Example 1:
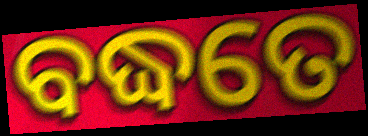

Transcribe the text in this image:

ବଦ୍ଧତେ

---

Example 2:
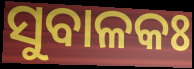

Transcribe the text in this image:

ସୁବାଳକଃ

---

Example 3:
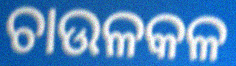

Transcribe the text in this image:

ଚାଉଳକଳ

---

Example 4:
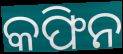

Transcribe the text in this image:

କଫିନ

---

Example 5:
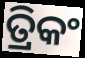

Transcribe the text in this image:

ତ୍ରିକଂ